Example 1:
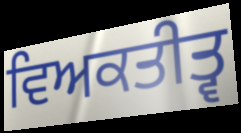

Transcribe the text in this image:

ਵਿਅਕਤੀਤ੍ਵ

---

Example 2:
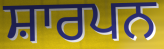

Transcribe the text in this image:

ਸ਼ਾਰਪਨ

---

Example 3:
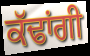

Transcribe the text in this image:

ਕੱਢਾਂਗੀ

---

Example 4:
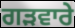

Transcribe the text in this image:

ਗੜਵਾਰੇ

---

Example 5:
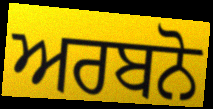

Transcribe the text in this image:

ਅਰਬਨੋ